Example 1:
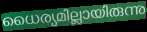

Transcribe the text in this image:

ധൈര്യമില്ലായിരുന്നു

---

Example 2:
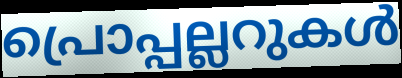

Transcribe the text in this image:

പ്രൊപ്പല്ലറുകൾ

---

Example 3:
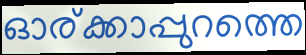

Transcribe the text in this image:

ഓര്ക്കാപ്പുറത്തെ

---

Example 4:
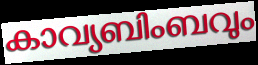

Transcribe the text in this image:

കാവ്യബിംബവും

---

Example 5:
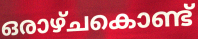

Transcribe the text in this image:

ഒരാഴ്ചകൊണ്ട്